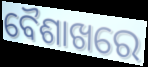
ବୈଶାଖରେ